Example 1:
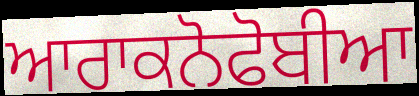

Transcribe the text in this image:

ਆਰਾਕਨੋਫੋਬੀਆ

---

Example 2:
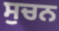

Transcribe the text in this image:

ਸੁਚਨ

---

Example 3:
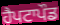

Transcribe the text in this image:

ਹੈਪਟਾਪੌਡ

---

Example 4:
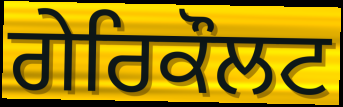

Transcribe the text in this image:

ਗੇਰਿਕੌਲਟ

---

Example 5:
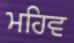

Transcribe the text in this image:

ਮਹਿਵ